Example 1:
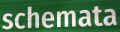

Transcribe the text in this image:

schemata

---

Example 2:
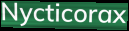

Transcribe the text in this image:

Nycticorax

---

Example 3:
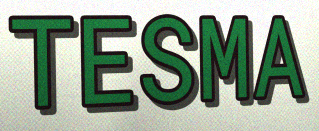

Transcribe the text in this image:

TESMA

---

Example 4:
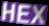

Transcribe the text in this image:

HEX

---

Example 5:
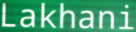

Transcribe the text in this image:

Lakhani